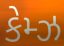
કેમ્ઝ